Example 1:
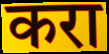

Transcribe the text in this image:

करा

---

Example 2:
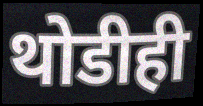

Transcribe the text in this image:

थोडीही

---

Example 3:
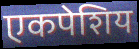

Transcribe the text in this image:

एकपेशिय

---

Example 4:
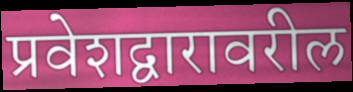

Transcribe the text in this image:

प्रवेशद्वारावरील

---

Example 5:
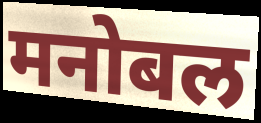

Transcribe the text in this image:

मनोबल